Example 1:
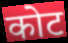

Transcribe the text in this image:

कोट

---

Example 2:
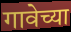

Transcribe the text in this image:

गावेच्या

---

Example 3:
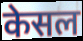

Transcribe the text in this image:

केसल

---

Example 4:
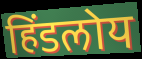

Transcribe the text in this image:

हिंडलोय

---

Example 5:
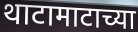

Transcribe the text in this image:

थाटामाटाच्या